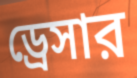
ড্রেসার